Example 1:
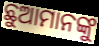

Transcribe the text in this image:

ଛୁଆମାନଙ୍କୁ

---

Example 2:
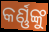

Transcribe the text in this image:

କର୍ଣ୍ଣଙ୍କୁ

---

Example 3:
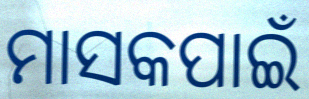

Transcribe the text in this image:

ମାସକପାଇଁ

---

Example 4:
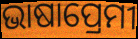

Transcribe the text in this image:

ଭାଷାପ୍ରେମୀ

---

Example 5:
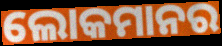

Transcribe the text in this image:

ଲୋକମାନର